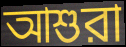
আশুরা